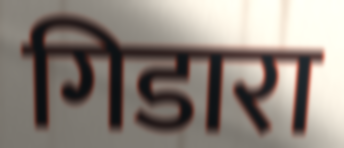
गिडारा